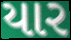
યાર